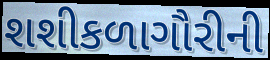
શશીકળાગૌરીની